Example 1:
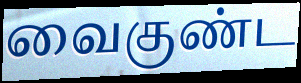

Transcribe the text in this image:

வைகுண்ட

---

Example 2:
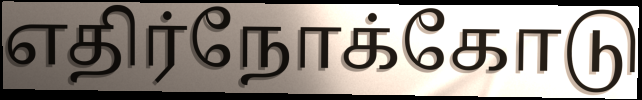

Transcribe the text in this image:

எதிர்நோக்கோடு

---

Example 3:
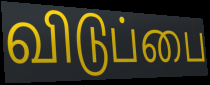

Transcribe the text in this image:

விடுப்பை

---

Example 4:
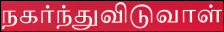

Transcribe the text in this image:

நகர்ந்துவிடுவாள்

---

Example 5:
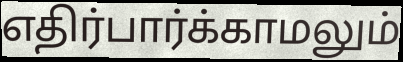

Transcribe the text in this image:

எதிர்பார்க்காமலும்